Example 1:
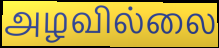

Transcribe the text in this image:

அழவில்லை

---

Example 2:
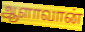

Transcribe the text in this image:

ஆளாவான்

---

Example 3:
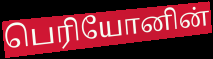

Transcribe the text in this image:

பெரியோனின்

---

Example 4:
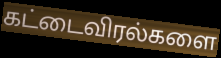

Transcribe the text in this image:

கட்டைவிரல்களை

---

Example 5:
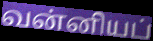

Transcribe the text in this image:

வன்னியப்